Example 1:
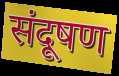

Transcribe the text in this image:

संदूषण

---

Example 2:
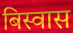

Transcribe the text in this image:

बिस्वास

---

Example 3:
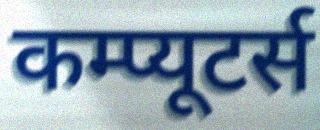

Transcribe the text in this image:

कम्प्यूटर्स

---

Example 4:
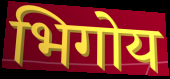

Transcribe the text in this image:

भिगोय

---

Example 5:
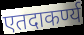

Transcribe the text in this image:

एतदाकर्ण्य